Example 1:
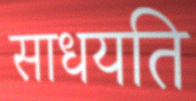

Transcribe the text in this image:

साधयति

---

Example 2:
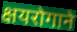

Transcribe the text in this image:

क्षयरोगाने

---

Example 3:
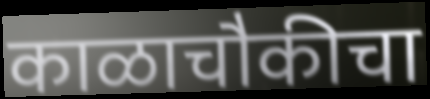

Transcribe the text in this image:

काळाचौकीचा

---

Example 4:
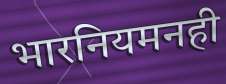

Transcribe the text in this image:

भारनियमनही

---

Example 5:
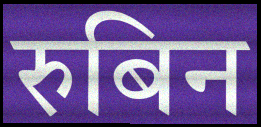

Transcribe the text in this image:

रुबिन